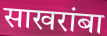
साखरांबा